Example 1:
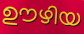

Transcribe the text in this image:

ഊഴിയ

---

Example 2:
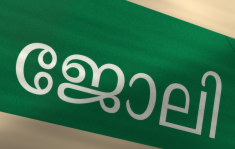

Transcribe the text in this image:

ജോലി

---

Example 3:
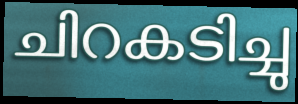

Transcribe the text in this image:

ചിറകടിച്ചു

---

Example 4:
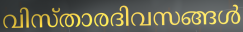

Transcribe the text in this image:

വിസ്താരദിവസങ്ങൾ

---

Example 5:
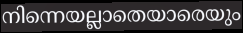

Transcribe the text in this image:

നിന്നെയല്ലാതെയാരെയും